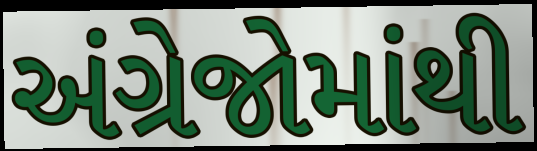
અંગ્રેજોમાંથી